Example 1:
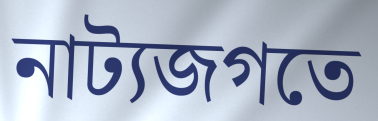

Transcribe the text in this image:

নাট্যজগতে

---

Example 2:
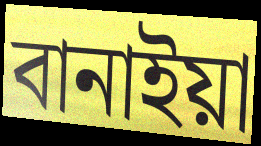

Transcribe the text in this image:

বানাইয়া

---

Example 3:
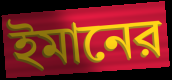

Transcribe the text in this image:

ইমানের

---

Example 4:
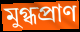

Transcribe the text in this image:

মুগ্ধপ্রাণ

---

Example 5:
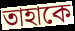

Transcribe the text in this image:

তাহাকে